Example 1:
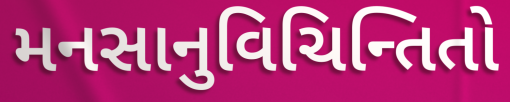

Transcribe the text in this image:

મનસાનુવિચિન્તિતો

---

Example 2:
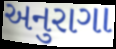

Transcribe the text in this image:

અનુરાગા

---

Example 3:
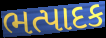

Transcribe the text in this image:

ભત્પાદક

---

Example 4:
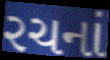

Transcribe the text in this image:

રચનાં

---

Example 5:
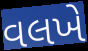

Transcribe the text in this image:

વલખે